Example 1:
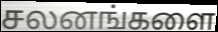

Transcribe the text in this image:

சலனங்களை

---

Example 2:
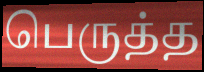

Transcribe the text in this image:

பெருத்த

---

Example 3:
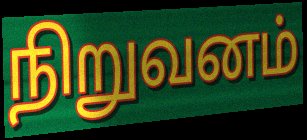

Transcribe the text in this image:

நிறுவனம்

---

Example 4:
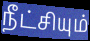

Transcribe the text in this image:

நீட்சியும்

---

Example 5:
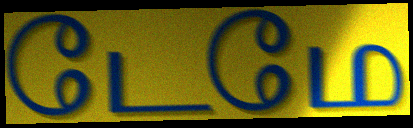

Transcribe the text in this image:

டேமே